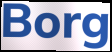
Borg